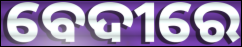
ବେଦୀରେ